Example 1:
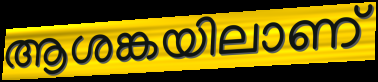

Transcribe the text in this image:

ആശങ്കയിലാണ്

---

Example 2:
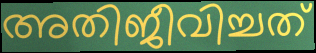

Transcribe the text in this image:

അതിജീവിച്ചത്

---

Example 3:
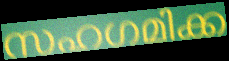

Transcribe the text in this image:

സഹഗമിക്ക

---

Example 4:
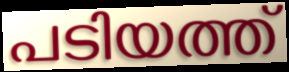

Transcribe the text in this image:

പടിയത്ത്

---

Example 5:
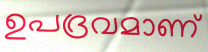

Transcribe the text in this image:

ഉപദ്രവമാണ്